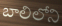
బాలిలోని